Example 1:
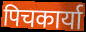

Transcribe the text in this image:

पिचकार्या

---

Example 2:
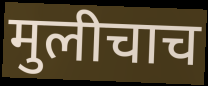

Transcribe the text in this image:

मुलीचाच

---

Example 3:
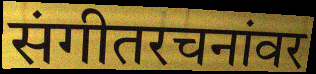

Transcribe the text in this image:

संगीतरचनांवर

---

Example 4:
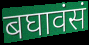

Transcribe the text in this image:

बघावंसं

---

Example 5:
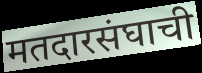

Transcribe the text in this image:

मतदारसंघाची